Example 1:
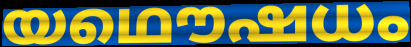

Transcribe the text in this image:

യഥൌഷധം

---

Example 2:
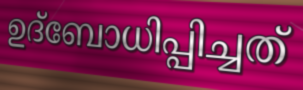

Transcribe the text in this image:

ഉദ്ബോധിപ്പിച്ചത്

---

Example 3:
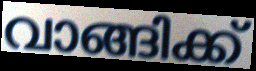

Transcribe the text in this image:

വാങ്ങിക്ക്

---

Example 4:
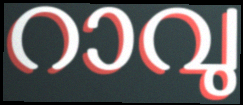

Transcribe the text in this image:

റാവു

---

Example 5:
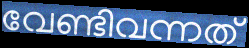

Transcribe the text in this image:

വേണ്ടിവന്നത്